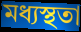
মধ্যস্থতা